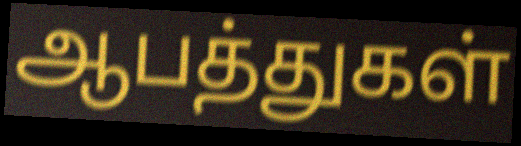
ஆபத்துகள்